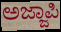
ಅಜ್ಜಾಪಿ